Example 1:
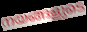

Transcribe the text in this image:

നയങ്ങളുടെ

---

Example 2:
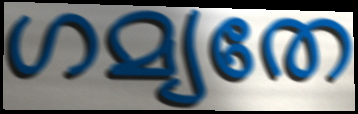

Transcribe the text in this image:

ഗമ്യതേ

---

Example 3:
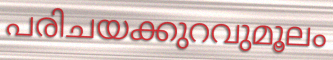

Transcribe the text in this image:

പരിചയക്കുറവുമൂലം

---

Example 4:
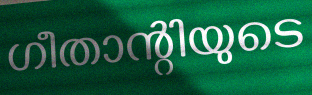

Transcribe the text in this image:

ഗീതാന്റിയുടെ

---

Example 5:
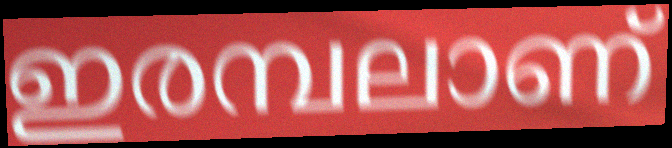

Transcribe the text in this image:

ഇരമ്പലാണ്